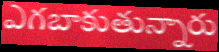
ఎగబాకుతున్నారు